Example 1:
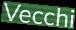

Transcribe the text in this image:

Vecchi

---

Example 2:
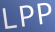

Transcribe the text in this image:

LPP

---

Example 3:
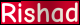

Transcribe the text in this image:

Rishad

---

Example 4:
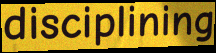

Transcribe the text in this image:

disciplining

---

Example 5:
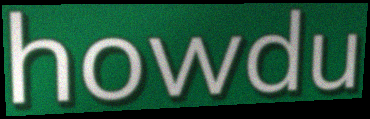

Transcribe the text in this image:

howdu